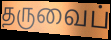
தருவைப்